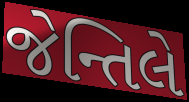
જેન્તિલે